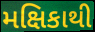
મક્ષિકાથી